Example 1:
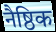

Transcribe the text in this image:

नैष्ठिक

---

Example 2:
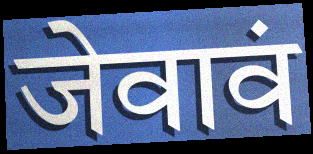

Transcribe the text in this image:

जेवावं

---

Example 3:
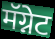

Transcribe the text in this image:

मॅग्नेट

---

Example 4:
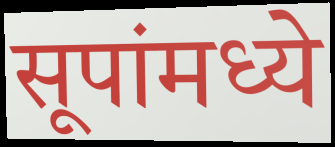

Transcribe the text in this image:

सूपांमध्ये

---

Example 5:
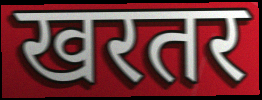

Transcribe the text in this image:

खरतर